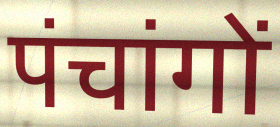
पंचांगों